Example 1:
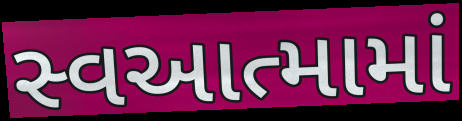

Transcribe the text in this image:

સ્વઆત્મામાં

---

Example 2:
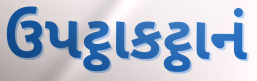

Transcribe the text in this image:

ઉપટ્ઠાકટ્ઠાનં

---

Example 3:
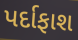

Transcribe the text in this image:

પર્દાફાશ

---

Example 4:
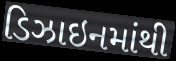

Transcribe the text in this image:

ડિઝાઇનમાંથી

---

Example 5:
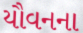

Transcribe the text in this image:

યૌવનના